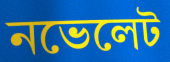
নভেলেট